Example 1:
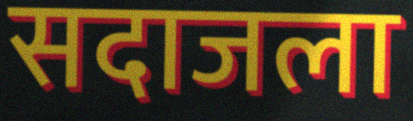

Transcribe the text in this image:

सदाजला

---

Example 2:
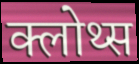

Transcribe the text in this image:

क्लोथ्स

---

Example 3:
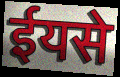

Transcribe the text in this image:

ईयसे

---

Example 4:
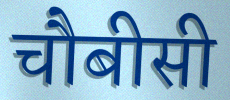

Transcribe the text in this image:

चौबीसी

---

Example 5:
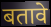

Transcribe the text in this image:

बतावे